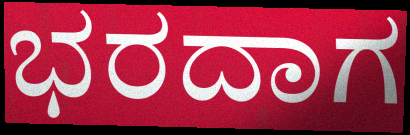
ಭರದಾಗ